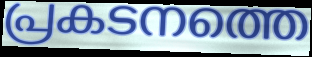
പ്രകടനത്തെ